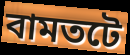
বামতটে